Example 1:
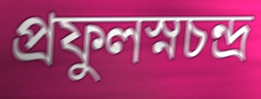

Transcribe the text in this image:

প্রফুলস্নচন্দ্র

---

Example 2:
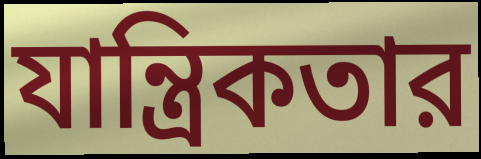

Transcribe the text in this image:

যান্ত্রিকতার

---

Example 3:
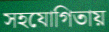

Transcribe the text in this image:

সহযোগিতায়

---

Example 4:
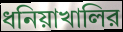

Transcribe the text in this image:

ধনিয়াখালির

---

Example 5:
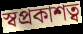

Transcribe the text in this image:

স্বপ্রকাশত্ব